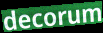
decorum